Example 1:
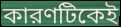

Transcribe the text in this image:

কারণটিকেই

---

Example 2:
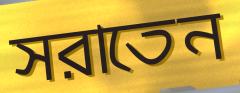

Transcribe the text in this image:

সরাতেন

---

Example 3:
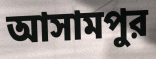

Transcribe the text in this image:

আসামপুর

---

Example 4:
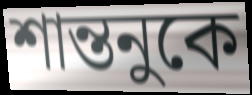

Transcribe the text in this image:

শান্তনুকে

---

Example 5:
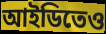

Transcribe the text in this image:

আইডিতেও